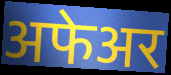
अफेअर